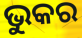
ଭୁକର